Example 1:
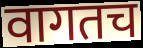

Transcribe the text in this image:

वागतच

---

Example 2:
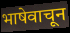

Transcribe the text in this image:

भाषेवाचून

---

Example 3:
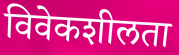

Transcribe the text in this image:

विवेकशीलता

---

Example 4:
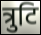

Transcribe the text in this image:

त्रुटि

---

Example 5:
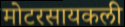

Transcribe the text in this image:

मोटरसायकली